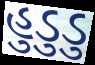
હુડુડુ